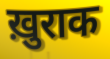
ख़ुराक